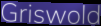
Griswold